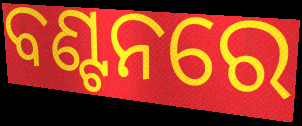
ବଣ୍ଟନରେ